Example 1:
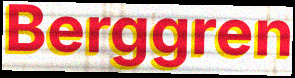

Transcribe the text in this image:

Berggren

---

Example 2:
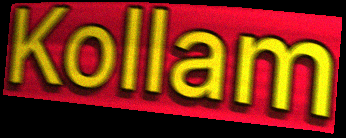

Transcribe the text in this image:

Kollam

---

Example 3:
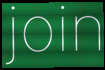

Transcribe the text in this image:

join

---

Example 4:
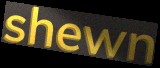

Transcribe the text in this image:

shewn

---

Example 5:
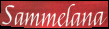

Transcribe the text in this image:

Sammelana